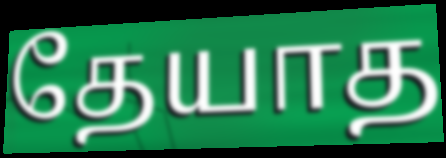
தேயாத